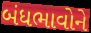
બંધભાવોને